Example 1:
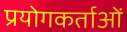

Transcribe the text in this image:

प्रयोगकर्ताओं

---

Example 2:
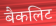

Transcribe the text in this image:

बैकलिट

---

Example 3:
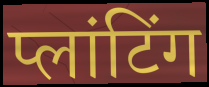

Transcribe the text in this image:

प्लांटिंग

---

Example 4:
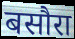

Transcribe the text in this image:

बसौरा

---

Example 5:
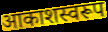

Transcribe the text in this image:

आकाशस्वरूप